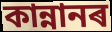
কান্নানৰ